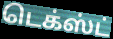
டெக்ஸ்ட்